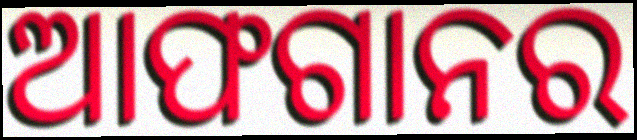
ଆଫଗାନର